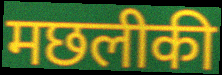
मछलीकी